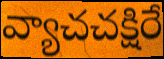
వ్యాచచక్షిరే